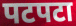
पटपटा